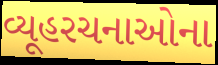
વ્યૂહરચનાઓના